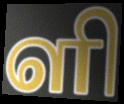
ளி